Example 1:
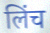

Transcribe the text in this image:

लिंच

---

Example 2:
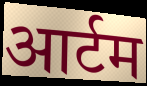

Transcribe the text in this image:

आर्टम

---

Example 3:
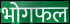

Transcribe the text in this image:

भोगफल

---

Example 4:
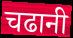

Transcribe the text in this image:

चढानी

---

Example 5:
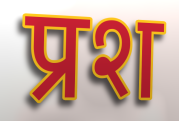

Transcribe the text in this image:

प्रश